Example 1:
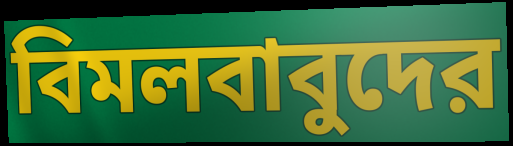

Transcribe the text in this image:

বিমলবাবুদের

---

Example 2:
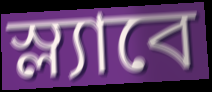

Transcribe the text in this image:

স্ল্যাবে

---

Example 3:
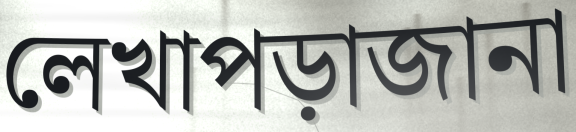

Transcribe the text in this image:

লেখাপড়াজানা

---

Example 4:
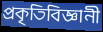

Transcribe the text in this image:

প্রকৃতিবিজ্ঞানী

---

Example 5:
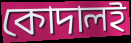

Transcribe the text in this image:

কোদালই